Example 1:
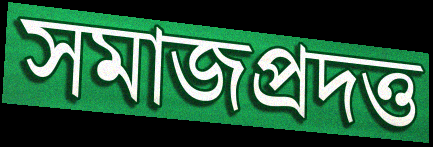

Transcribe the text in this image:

সমাজপ্রদত্ত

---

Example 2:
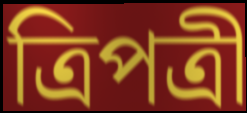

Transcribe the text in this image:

ত্রিপত্রী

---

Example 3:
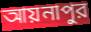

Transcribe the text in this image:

আয়নাপুর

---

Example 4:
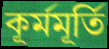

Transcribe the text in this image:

কূর্মমূর্তি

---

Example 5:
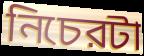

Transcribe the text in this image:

নিচেরটা